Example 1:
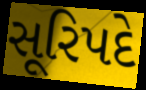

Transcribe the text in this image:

સૂરિપદે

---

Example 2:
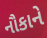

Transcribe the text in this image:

નૌકાને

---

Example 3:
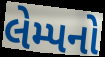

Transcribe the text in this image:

લેમ્પનો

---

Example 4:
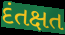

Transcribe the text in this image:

દંતક્ષત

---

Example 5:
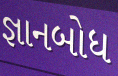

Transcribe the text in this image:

જ્ઞાનબોધ